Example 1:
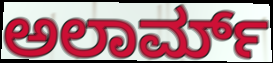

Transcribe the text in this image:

ಅಲಾರ್ಮ್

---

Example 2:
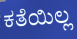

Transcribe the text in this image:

ಕತೆಯಿಲ್ಲ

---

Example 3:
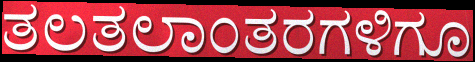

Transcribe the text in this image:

ತಲತಲಾಂತರಗಳಿಗೂ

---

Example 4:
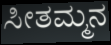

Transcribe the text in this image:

ಸೀತಮ್ಮನ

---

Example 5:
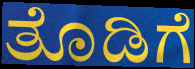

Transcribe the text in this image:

ತೊಡಿಗೆ